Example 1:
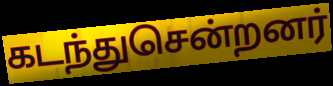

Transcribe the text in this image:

கடந்துசென்றனர்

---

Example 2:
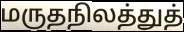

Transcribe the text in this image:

மருதநிலத்துத்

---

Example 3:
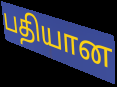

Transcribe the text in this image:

பதியான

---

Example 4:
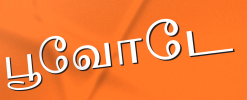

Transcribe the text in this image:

பூவோடே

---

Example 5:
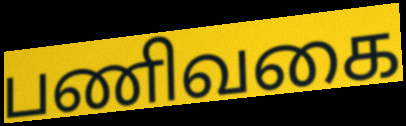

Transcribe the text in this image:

பணிவகை